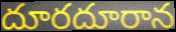
దూరదూరాన